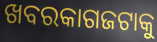
ଖବରକାଗଜଟାକୁ